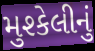
મુશ્કેલીનું